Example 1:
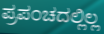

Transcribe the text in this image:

ಪ್ರಪಂಚದಲ್ಲಿಲ್ಲ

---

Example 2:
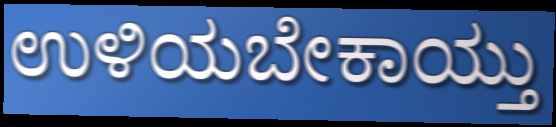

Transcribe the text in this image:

ಉಳಿಯಬೇಕಾಯ್ತು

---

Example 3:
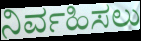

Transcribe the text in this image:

ನಿರ್ವಹಿಸಲು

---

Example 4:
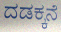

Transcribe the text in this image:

ದಡಕ್ಕನೆ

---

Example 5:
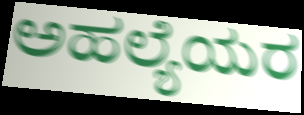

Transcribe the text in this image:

ಅಹಲ್ಯೆಯರ